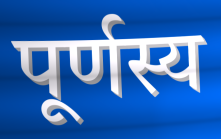
पूर्णस्य